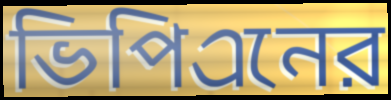
ভিপিএনের